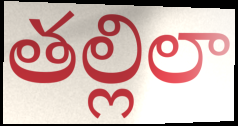
తల్లిలా